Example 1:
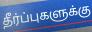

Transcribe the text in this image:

தீர்ப்புகளுக்கு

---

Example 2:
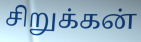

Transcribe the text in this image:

சிறுக்கன்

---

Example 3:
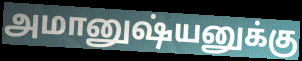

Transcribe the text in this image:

அமானுஷ்யனுக்கு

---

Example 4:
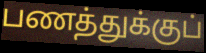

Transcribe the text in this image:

பணத்துக்குப்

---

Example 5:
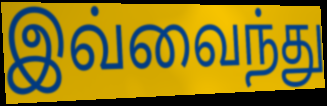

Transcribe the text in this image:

இவ்வைந்து